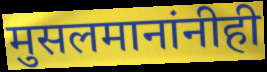
मुसलमानांनीही